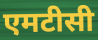
एमटीसी